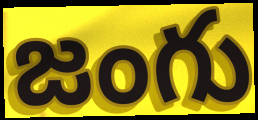
జంగు